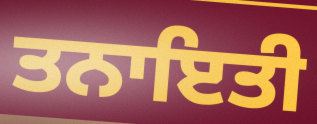
ਤਨਾਇਤੀ